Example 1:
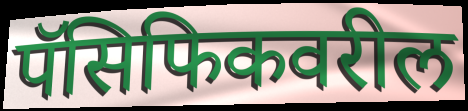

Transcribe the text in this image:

पॅसिफिकवरील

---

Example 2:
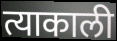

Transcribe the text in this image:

त्याकाली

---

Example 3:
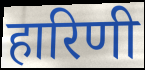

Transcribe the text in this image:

हारिणी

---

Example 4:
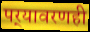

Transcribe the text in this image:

पर्यावरणही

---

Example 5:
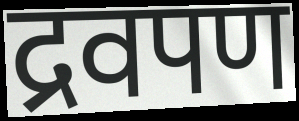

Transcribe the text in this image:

द्रवपण